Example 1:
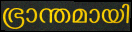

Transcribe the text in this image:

ഭ്രാന്തമായി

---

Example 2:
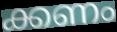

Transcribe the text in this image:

ക്കണം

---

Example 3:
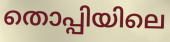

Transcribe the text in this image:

തൊപ്പിയിലെ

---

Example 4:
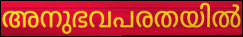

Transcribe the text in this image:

അനുഭവപരതയിൽ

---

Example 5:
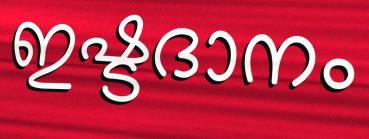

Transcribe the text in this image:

ഇഷ്ടദാനം